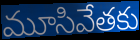
మూసివేతకు